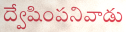
ద్వేషింపనివాడు